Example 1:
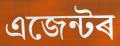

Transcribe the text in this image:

এজেন্টৰ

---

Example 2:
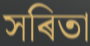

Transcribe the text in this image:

সৰিতা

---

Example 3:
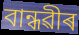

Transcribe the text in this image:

বান্ধৱীৰ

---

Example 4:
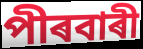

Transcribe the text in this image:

পীৰবাৰী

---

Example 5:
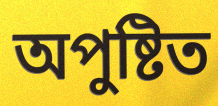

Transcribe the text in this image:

অপুষ্টিত